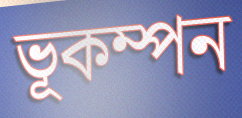
ভূকম্পন